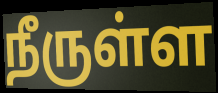
நீருள்ள